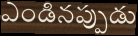
ఎండినప్పుడు